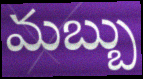
మబ్బు